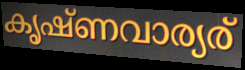
കൃഷ്ണവാര്യര്